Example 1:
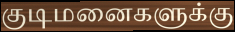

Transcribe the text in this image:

குடிமனைகளுக்கு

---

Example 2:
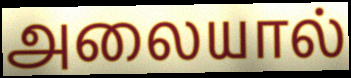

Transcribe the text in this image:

அலையால்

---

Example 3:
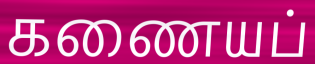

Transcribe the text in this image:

கணையப்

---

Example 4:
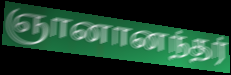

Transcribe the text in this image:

ஞானானந்தர்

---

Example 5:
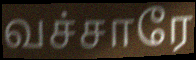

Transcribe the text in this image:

வச்சாரே